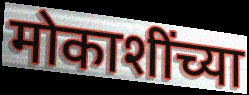
मोकाशींच्या